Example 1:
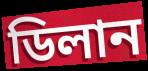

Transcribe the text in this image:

ডিলান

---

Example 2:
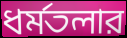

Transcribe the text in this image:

ধর্মতলার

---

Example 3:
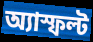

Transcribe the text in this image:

অ্যাস্ফল্ট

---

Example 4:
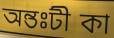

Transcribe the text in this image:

অন্তঃটীকা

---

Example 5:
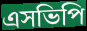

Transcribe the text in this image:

এসভিপি